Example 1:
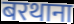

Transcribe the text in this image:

बरथाना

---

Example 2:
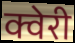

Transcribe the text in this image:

क्वेरी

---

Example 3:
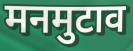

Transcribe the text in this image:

मनमुटाव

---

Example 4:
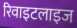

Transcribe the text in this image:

रिवाइटलाइज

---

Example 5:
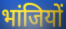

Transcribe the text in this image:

भांजियों